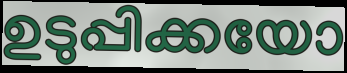
ഉടുപ്പിക്കയോ